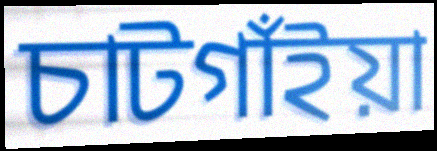
চাটগাঁইয়া